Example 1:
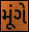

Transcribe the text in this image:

મૂંગે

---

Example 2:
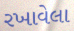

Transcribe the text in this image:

રખાવેલા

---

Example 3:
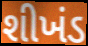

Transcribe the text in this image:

શીખંડ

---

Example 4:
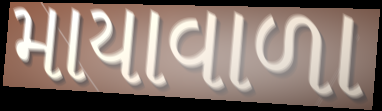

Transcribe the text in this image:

માયાવાળા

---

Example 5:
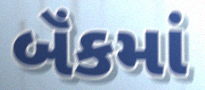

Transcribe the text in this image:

બૅંકમાં